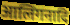
आलिंगनादि